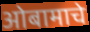
ओबामाचे